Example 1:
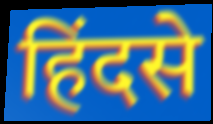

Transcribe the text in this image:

हिंदसे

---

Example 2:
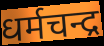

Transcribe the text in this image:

धर्मचन्द्र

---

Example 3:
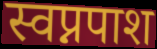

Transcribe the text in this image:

स्वप्नपाश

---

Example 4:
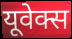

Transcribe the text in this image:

यूवेक्स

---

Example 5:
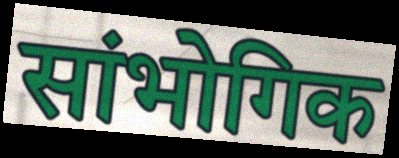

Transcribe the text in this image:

सांभोगिक